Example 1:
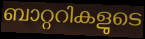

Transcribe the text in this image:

ബാറ്ററികളുടെ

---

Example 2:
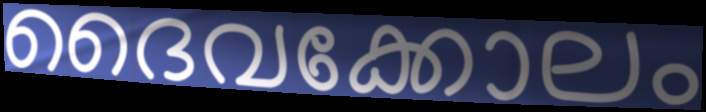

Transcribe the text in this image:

ദൈവക്കോലം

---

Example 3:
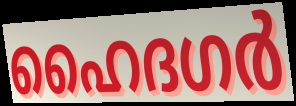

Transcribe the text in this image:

ഹൈദഗർ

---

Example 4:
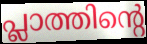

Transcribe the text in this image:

പ്ലാത്തിന്റെ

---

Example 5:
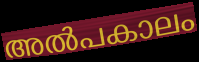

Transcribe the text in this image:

അൽപകാലം